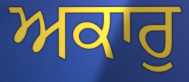
ਅਕਾਰੁ